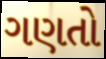
ગણતો